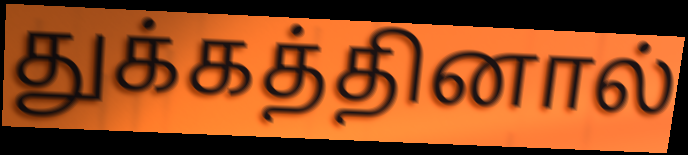
துக்கத்தினால்